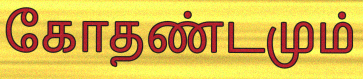
கோதண்டமும்